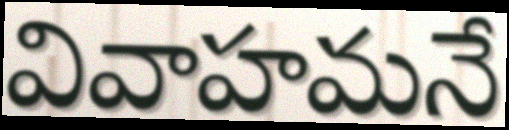
వివాహమనే